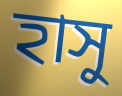
হাসু